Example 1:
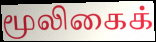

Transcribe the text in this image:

மூலிகைக்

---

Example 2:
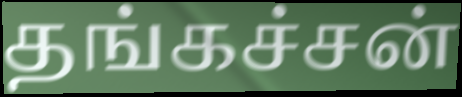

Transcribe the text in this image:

தங்கச்சன்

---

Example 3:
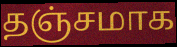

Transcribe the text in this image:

தஞ்சமாக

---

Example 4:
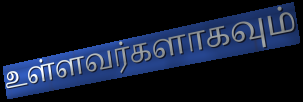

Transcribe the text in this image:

உள்ளவர்களாகவும்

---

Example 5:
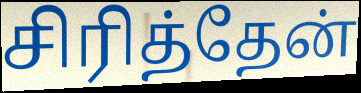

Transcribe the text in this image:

சிரித்தேன்